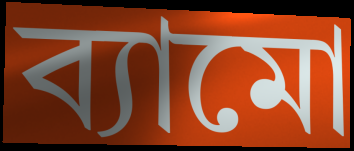
ব্যামো